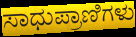
ಸಾಧುಪ್ರಾಣಿಗಳು